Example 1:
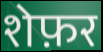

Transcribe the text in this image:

शेफ़र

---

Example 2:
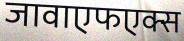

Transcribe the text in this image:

जावाएफएक्स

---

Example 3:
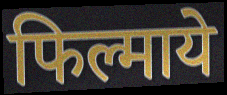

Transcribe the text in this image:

फिल्माये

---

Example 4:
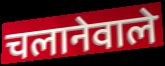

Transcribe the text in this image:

चलानेवाले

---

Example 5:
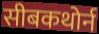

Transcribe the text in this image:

सीबकथोर्न